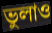
ভুলাও